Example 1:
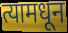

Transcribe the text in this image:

त्यामधून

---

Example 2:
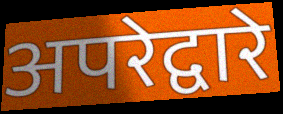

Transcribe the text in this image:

अपरेद्वारे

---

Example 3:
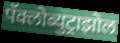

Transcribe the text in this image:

पॅक्लोब्युट्राझोल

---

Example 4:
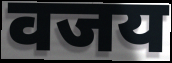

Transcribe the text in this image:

वजय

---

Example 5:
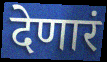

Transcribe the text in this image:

देणारं